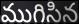
ముగిసిన